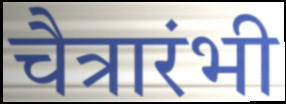
चैत्रारंभी